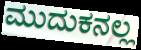
ಮುದುಕನಲ್ಲ